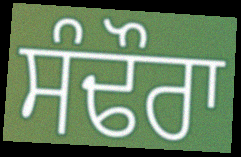
ਸੰਢੌਰਾ